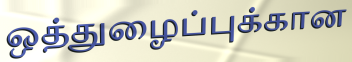
ஒத்துழைப்புக்கான